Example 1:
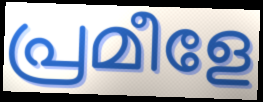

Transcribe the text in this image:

പ്രമീളേ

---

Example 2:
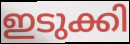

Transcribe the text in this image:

ഇടുക്കി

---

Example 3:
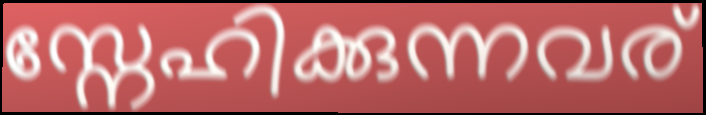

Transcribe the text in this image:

സ്നേഹിക്കുന്നവര്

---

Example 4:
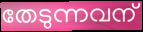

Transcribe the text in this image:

തേടുന്നവന്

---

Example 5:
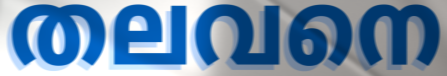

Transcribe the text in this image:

തലവനെ